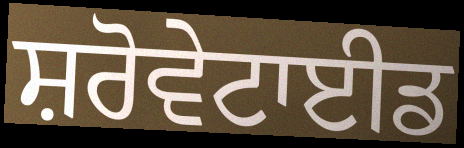
ਸ਼ਰੋਵੇਟਾਈਡ